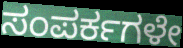
ಸಂಪರ್ಕಗಳೇ